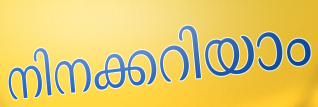
നിനക്കറിയാം